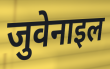
जुवेनाइल